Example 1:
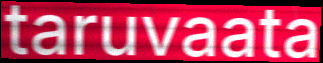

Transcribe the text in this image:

taruvaata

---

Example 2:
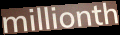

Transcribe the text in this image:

millionth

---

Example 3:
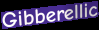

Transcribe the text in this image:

Gibberellic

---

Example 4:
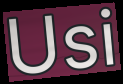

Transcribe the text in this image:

Usi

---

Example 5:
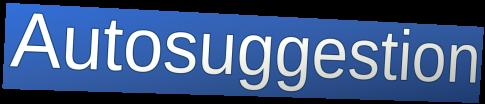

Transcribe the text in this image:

Autosuggestion